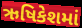
ઋષિકેશમાં